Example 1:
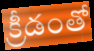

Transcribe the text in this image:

క్రీడంతో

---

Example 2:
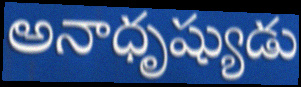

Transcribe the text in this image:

అనాధృష్యుడు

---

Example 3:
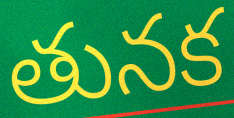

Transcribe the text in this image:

తునక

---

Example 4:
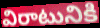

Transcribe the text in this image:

విరాటునికి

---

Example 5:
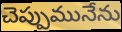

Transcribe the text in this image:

చెప్పుమునేను